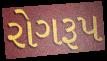
રોગરૂપ